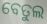
ବେତୁଲ